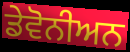
ਡੇਵੋਨੀਅਨ